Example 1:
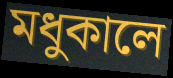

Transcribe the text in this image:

মধুকালে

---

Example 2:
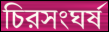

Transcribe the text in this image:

চিরসংঘর্ষ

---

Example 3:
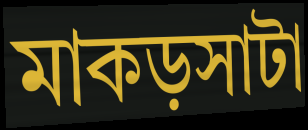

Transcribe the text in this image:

মাকড়সাটা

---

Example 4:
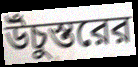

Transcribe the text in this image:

উঁচুস্তরের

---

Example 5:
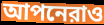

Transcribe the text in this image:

আপনেরাও